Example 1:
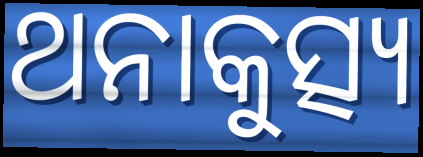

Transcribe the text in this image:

ଥନାକୁତ୍ସ୍ୟ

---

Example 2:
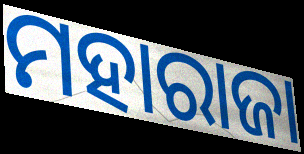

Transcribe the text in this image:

ମହାରାଜା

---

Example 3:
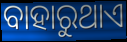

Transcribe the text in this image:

ବାହାରୁଥାଏ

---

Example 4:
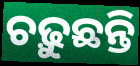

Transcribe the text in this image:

ଚଢ଼ୁଛନ୍ତି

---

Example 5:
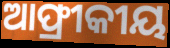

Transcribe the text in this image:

ଆଫ୍ରୀକୀୟ